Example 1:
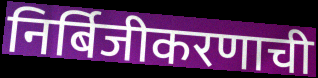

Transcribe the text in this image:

निर्बिजीकरणाची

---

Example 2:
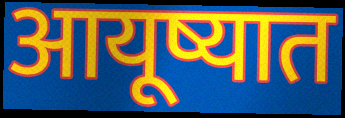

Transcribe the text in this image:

आयूष्यात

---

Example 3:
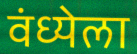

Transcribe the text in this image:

वंध्येला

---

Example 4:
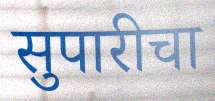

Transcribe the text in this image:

सुपारीचा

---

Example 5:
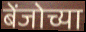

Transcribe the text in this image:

बेंजोच्या